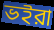
ভইরা